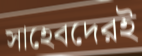
সাহেবদেরই